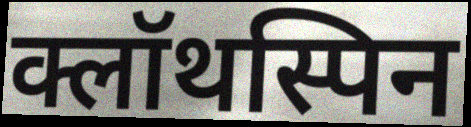
क्लॉथस्पिन